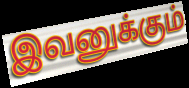
இவனுக்கும்